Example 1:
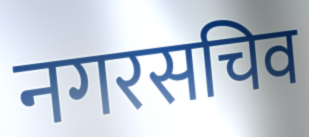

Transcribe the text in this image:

नगरसचिव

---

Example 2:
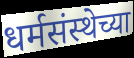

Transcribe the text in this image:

धर्मसंस्थेच्या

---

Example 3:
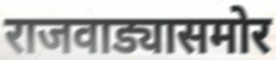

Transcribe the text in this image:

राजवाड्यासमोर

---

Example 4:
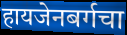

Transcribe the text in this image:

हायजेनबर्गचा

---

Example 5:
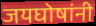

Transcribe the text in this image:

जयघोषांनी